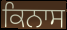
ਕਿਨਾਸ